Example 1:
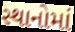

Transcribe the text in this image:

સ્થાનોમાં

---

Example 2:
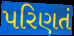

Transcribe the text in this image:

પરિણતં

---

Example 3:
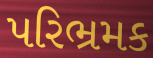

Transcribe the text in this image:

પરિભ્રમક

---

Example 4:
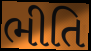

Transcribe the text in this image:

ભીતિ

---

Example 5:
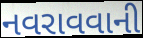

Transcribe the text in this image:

નવરાવવાની